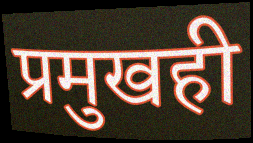
प्रमुखही